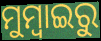
ମୁମ୍ବାଇରୁ